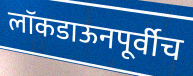
लॉकडाऊनपूर्वीच